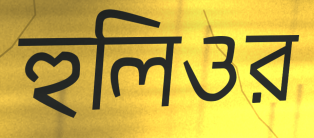
হুলিওর